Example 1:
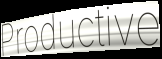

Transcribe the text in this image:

Productive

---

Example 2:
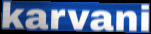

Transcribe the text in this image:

karvani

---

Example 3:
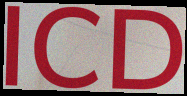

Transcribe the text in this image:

ICD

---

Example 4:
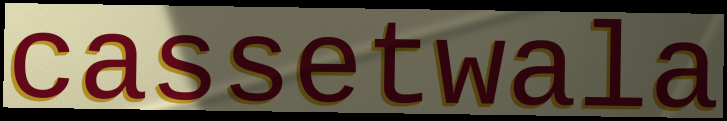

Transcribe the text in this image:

cassetwala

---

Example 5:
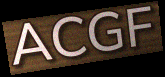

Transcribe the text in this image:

ACGF